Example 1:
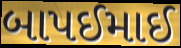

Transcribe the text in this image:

બાપઈમાઈ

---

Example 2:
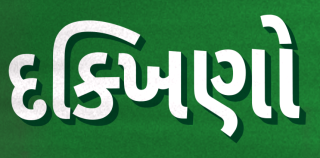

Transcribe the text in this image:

દક્ખિણો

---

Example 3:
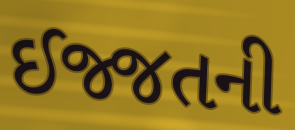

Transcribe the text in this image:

ઈજ્જતની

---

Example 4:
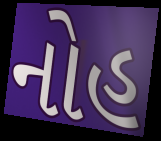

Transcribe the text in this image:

નોહ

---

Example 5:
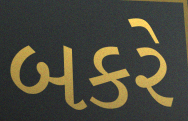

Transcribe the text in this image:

બકરે